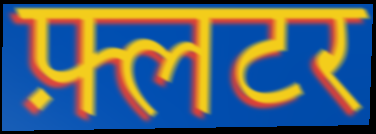
फ़्लटर